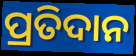
ପ୍ରତିଦାନ